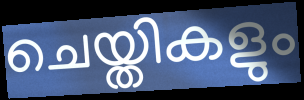
ചെയ്തികളും